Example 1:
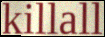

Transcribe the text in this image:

killall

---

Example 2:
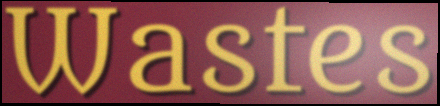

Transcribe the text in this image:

Wastes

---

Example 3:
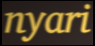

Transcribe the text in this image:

nyari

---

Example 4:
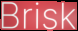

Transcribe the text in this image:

Brisk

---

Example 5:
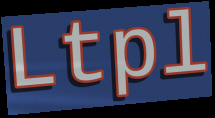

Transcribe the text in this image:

Ltpl